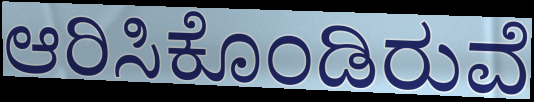
ಆರಿಸಿಕೊಂಡಿರುವೆ